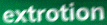
extrotion